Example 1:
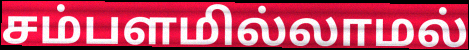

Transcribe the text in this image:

சம்பளமில்லாமல்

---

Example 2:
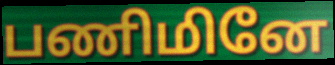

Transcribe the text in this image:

பணிமினே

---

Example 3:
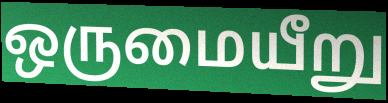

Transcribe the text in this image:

ஒருமையீறு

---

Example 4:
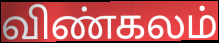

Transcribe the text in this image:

விண்கலம்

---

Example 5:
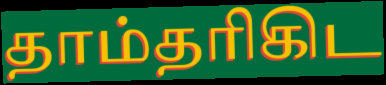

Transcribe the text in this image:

தாம்தரிகிட